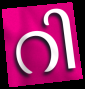
റി